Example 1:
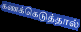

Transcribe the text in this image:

கணக்கெடுத்தால்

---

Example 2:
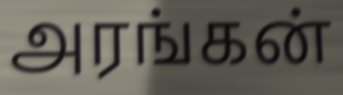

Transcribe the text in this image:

அரங்கன்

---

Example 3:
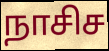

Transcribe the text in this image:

நாசிச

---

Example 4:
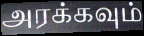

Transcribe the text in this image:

அரக்கவும்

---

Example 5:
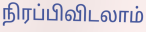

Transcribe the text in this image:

நிரப்பிவிடலாம்